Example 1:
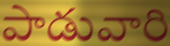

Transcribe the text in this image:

పాడువారి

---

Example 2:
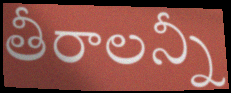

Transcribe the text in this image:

తీరాలన్నీ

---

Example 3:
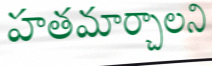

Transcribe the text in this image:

హతమార్చాలని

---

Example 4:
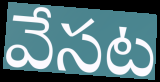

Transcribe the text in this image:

వేసట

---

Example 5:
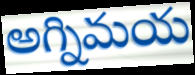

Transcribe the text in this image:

అగ్నిమయ